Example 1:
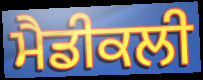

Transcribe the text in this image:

ਮੈਡੀਕਲੀ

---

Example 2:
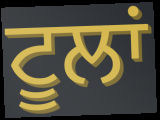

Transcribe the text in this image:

ਟੂਲਾਂ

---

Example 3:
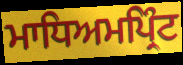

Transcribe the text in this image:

ਮਾਧਿਅਮਪ੍ਰਿੰਟ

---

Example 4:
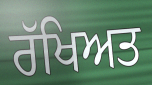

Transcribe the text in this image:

ਰੱਖਿਅਤ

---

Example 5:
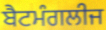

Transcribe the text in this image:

ਬੈਟਮੰਗਲੀਜ